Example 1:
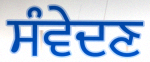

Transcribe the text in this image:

ਸੰਵੇਦਣ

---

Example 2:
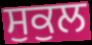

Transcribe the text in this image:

ਸੁਕੁਲ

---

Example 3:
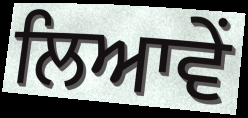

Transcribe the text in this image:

ਲਿਆਵੇਂ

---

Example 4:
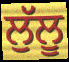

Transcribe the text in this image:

ਲੁੱਲੂ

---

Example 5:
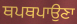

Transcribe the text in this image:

ਥਪਥਪਾਉਣਾ